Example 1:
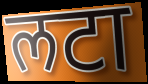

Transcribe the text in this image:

लटा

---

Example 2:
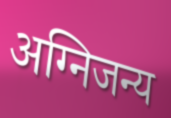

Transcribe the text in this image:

अग्निजन्य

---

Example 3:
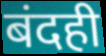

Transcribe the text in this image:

बंदही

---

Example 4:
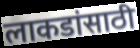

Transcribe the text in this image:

लाकडांसाठी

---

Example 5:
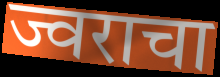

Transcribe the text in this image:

ज्वराचा